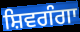
ਸ਼ਿਵਗੰਗਾ